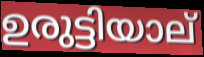
ഉരുട്ടിയാല്